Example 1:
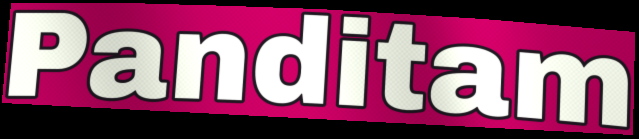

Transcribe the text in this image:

Panditam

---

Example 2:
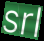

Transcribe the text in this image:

srl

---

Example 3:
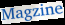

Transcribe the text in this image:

Magzine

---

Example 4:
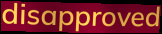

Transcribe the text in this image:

disapproved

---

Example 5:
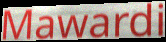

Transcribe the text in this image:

Mawardi